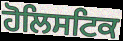
ਹੋਲਿਸਟਿਕ